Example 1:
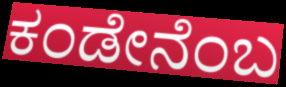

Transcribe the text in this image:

ಕಂಡೇನೆಂಬ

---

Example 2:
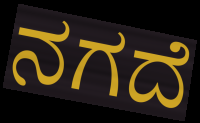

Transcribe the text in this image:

ನಗದೆ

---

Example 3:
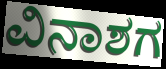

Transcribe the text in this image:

ವಿನಾಶಗ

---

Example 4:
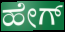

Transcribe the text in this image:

ಹೇಗ್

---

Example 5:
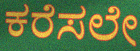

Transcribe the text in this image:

ಕರೆಸಲೇ